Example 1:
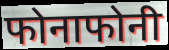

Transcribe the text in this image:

फोनाफोनी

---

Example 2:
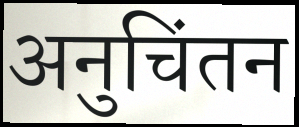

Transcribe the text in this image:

अनुचिंतन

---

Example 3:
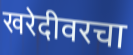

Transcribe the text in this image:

खरेदीवरचा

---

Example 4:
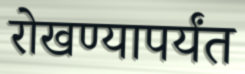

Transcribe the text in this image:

रोखण्यापर्यंत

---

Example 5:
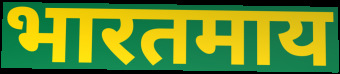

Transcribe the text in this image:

भारतमाय